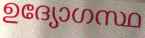
ഉദ്യോഗസ്ഥ